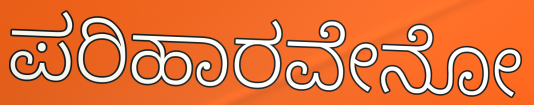
ಪರಿಹಾರವೇನೋ